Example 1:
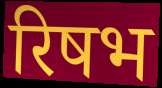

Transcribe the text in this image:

रिषभ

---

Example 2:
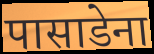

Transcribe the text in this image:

पासाडेना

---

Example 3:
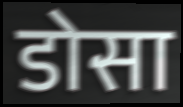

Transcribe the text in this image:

डोसा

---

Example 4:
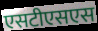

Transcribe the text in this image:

एसटीएसएस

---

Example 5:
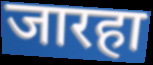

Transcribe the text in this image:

जारहा